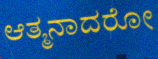
ಆತ್ಮನಾದರೋ